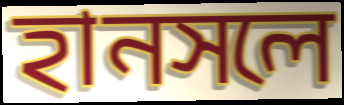
হানসলে